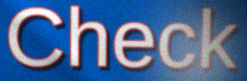
Check